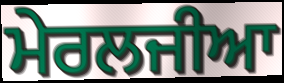
ਮੇਰਲਜੀਆ